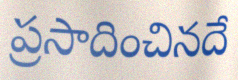
ప్రసాదించినదే